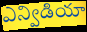
ఎన్విడియా